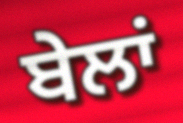
ਬੇਲਾਂ